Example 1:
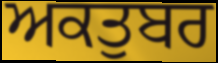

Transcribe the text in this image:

ਅਕਤੁਬਰ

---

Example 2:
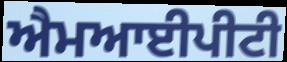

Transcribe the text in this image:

ਐਮਆਈਪੀਟੀ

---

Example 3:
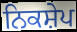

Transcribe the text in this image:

ਨਿਕਸ਼ੇਪ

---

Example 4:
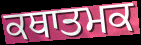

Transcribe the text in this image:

ਕਥਾਤਮਕ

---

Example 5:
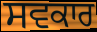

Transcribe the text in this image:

ਸਵਕਾਰ